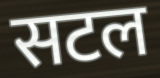
सटल